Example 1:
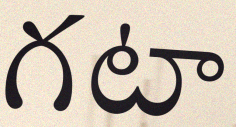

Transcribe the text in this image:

గటా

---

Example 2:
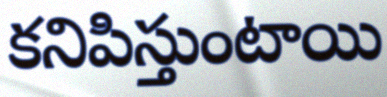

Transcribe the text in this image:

కనిపిస్తుంటాయి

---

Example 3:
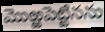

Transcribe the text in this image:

మొఱ్ఱపెట్టినను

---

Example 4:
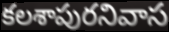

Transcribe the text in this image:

కలశాపురనివాస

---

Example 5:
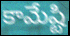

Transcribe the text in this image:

కామేష్టి